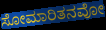
ಸೋಮಾರಿತನವೋ